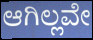
ಆಗಿಲ್ಲವೇ